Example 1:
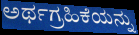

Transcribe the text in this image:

ಅರ್ಥಗ್ರಹಿಕೆಯನ್ನು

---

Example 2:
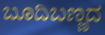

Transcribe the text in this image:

ಬೂದಿಬಣ್ಣದ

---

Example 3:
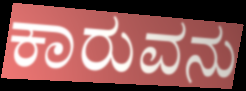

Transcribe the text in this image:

ಕಾರುವನು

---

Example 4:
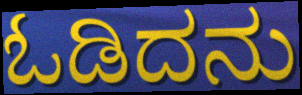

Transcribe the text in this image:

ಓಡಿದನು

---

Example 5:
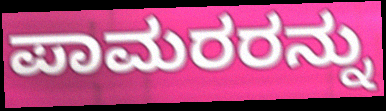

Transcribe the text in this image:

ಪಾಮರರನ್ನು